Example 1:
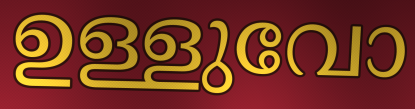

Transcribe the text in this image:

ഉള്ളുവോ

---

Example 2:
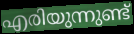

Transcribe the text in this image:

എരിയുന്നുണ്ട്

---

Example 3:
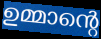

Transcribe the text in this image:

ഉമ്മാന്റെ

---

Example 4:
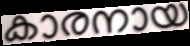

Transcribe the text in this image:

കാരനായ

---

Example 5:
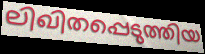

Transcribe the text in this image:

ലിഖിതപ്പെടുത്തിയ